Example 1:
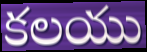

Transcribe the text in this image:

కలయు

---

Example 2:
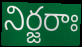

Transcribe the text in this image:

నిర్జరాః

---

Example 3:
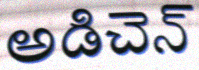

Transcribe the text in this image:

అడిచెన్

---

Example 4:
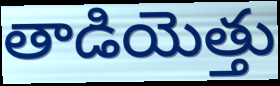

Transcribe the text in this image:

తాడియెత్తు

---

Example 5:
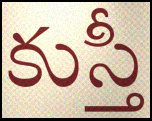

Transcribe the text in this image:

కుస్తీ